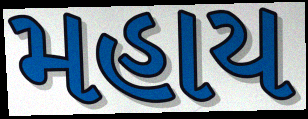
મહાય